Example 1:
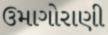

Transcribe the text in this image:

ઉમાગોરાણી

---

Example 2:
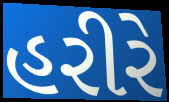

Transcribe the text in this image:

હરીરે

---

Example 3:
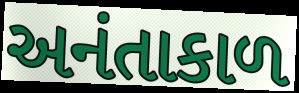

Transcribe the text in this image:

અનંતાકાળ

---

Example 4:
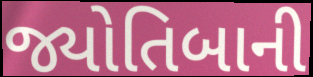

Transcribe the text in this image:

જ્યોતિબાની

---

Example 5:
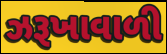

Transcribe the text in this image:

ઝરૂખાવાળી